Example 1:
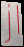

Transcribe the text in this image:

jl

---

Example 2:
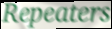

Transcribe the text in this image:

Repeaters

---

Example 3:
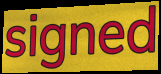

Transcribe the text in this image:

signed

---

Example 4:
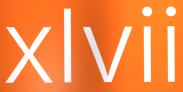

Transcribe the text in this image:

xlvii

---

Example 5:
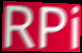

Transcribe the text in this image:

RPi